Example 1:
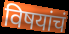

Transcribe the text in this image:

विषयांचं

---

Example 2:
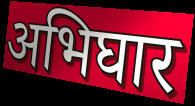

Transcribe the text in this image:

अभिघार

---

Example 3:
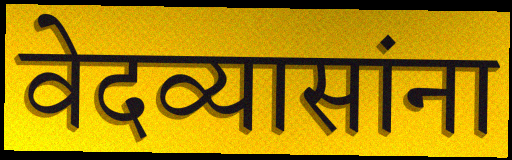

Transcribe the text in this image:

वेदव्यासांना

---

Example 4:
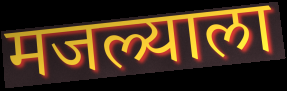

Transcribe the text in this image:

मजल्याला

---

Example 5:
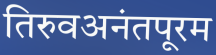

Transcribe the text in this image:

तिरुवअनंतपूरम